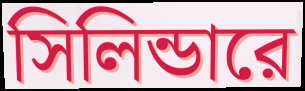
সিলিন্ডারে